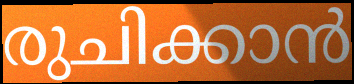
രുചിക്കാൻ